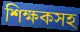
শিক্ষকসহ